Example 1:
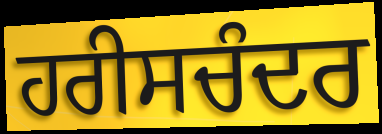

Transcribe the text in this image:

ਹਰੀਸਚੰਦਰ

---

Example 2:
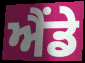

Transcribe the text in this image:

ਐਂਡੇ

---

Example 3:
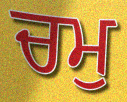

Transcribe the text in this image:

ਚਮੁ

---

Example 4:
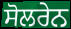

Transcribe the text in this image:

ਸੋਲਰੇਨ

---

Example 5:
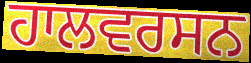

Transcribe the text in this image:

ਹਾਲਵਰਸਨ